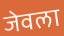
जेवला